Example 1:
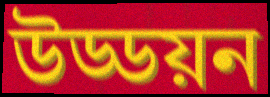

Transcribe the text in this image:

উড্ডয়ন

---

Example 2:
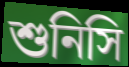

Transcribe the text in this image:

শুনিসি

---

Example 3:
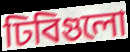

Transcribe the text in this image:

ঢিবিগুলো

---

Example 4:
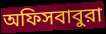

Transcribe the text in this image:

অফিসবাবুরা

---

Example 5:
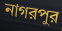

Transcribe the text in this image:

নাগরপুর